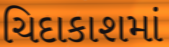
ચિદાકાશમાં